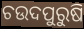
ଚଉଦପୁରୁଷି